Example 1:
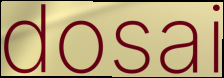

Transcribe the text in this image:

dosai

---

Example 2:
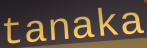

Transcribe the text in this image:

tanaka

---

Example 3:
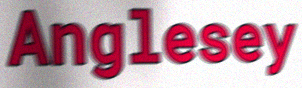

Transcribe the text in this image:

Anglesey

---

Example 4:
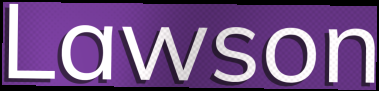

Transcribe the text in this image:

Lawson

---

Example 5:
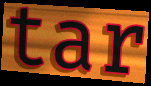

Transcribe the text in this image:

tar